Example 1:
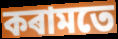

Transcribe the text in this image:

কৰামতে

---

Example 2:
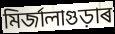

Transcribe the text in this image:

মিৰ্জালাগুড়াৰ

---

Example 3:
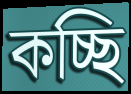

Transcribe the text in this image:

কচ্ছি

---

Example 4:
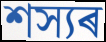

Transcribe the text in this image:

শস্যৰ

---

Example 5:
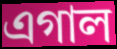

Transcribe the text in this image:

এগাল